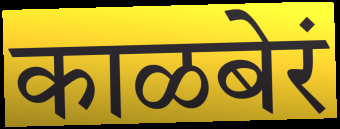
काळबेरं